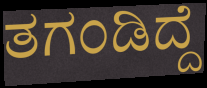
ತಗಂಡಿದ್ದೆ